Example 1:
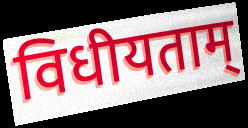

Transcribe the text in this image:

विधीयताम्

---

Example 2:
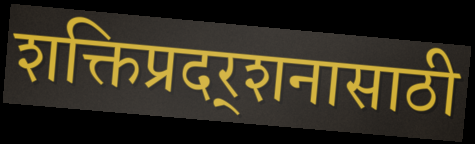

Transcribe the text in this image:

शक्तिप्रदर्शनासाठी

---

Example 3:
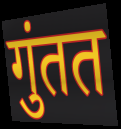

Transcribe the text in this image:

गुंतत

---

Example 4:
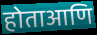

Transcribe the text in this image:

होताआणि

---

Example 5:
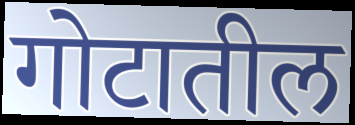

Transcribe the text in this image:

गोटातील